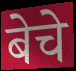
बेचे